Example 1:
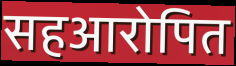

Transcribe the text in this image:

सहआरोपित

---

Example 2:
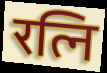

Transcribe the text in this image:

रत्नि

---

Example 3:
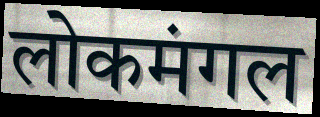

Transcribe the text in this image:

लोकमंगल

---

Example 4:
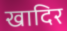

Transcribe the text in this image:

खादिर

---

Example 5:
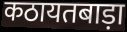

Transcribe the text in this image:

कठायतबाड़ा